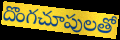
దొంగచూపులతో